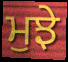
ਮੁਝੇ